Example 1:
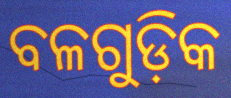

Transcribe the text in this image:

ବଳଗୁଡ଼ିକ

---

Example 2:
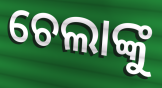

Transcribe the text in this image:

ଚେଲାଙ୍କୁ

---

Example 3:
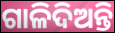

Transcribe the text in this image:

ଗାଳିଦିଅନ୍ତି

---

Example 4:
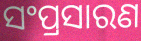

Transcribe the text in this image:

ସଂପ୍ରସାରଣ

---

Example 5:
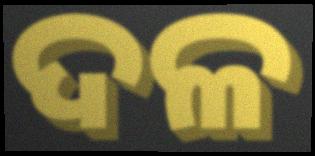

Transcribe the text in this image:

ଦଳ